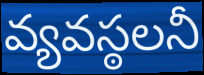
వ్యవస్ఠలనీ